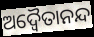
ଅଦ୍ଵୈତାନନ୍ଦ